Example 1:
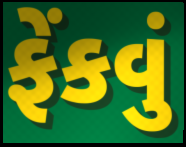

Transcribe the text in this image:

ફેંકવું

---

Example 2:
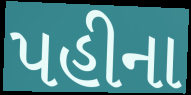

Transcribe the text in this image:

પહીના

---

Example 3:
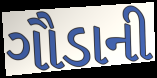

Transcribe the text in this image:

ગૌડાની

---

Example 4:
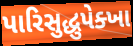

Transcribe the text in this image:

પારિસુદ્ધુપેક્ખા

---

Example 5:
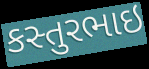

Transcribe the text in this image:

કસ્તુરભાઇ